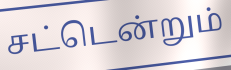
சட்டென்றும்